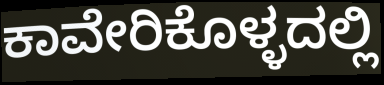
ಕಾವೇರಿಕೊಳ್ಳದಲ್ಲಿ